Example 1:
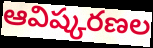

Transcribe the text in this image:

ఆవిష్కరణల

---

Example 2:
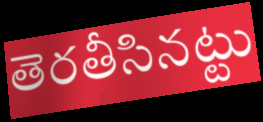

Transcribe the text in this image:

తెరతీసినట్టు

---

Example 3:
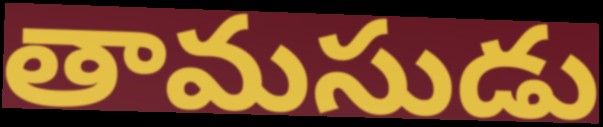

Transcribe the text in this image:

తామసుడు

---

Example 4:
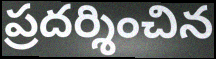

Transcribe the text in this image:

ప్రదర్శించిన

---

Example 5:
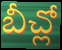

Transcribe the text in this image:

బీచ్లో